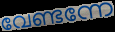
വേണ്ടന്നേ